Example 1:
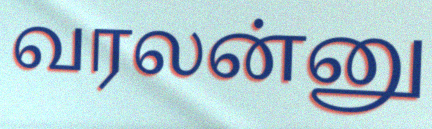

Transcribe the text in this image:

வரலன்னு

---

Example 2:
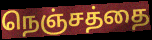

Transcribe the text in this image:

நெஞ்சத்தை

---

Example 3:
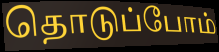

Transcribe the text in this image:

தொடுப்போம்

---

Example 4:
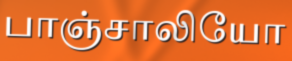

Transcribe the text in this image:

பாஞ்சாலியோ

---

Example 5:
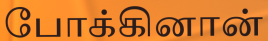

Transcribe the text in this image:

போக்கினான்